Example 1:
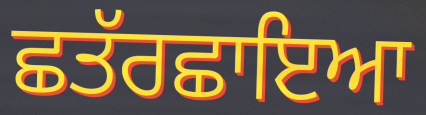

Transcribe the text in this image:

ਛਤੱਰਛਾਇਆ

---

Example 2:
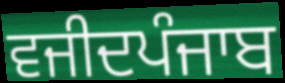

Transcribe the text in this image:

ਵਜੀਦਪੰਜਾਬ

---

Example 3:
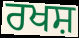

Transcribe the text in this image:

ਰਖਸ਼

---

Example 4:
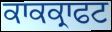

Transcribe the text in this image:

ਕਾਕਕ੍ਰਾਫਟ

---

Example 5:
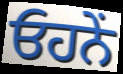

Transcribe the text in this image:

ਓਹਨੇੰ